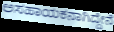
ಅಸಹಾಯಕನಾಗಿದ್ದೇನೆ